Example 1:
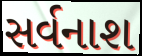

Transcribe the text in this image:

સર્વનાશ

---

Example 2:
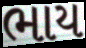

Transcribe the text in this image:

ભાય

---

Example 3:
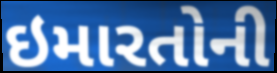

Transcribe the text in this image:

ઇમારતોની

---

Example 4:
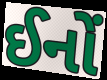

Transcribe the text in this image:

ઈનોં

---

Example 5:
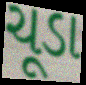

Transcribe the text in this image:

ચૂડા